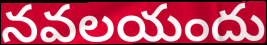
నవలయందు